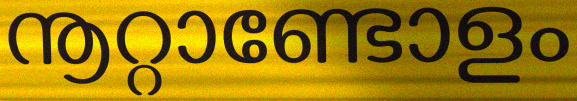
നൂറ്റാണ്ടോളം